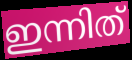
ഇന്നിത്